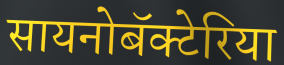
सायनोबॅक्टेरिया